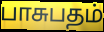
பாசுபதம்